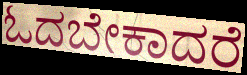
ಓದಬೇಕಾದರೆ